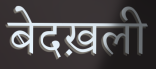
बेदख़ली